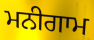
ਮਨੀਗਾਮ